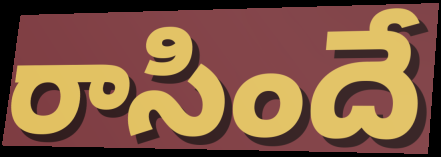
రాసిందే